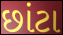
છાંટા